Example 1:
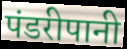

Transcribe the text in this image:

पंडरीपानी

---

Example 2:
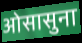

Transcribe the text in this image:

ओसासुना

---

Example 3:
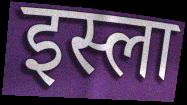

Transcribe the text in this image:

इस्ला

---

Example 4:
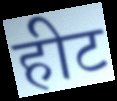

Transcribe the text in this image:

हीट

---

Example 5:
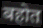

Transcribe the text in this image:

बहोत